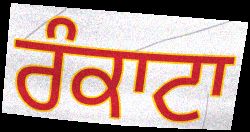
ਰੰਕਾਟਾ